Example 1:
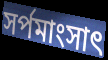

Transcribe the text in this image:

সর্পমাংসাৎ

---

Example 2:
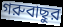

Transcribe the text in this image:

গরুবাছুর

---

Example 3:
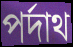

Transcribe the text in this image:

পর্দাথ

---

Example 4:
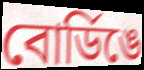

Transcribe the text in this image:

বোর্ডিঙে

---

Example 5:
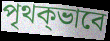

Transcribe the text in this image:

পৃথক্ভাবে